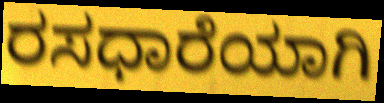
ರಸಧಾರೆಯಾಗಿ